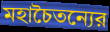
মহাচৈতন্যের